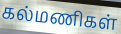
கல்மணிகள்